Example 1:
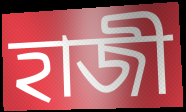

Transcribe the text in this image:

হাজী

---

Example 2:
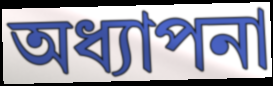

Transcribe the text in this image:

অধ্যাপনা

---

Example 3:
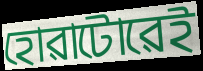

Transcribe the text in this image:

হোৱাটোৱেই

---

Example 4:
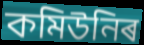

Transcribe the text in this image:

কমিউনিৰ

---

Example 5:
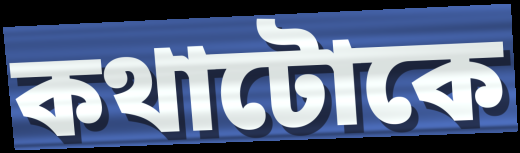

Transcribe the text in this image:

কথাটোকে